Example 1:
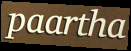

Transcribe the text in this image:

paartha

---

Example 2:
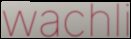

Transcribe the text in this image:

wachli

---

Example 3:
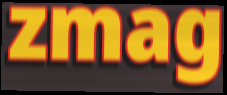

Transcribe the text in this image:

zmag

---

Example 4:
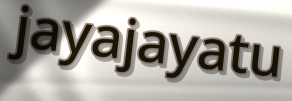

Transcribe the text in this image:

jayajayatu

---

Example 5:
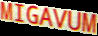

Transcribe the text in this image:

MIGAVUM